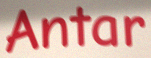
Antar